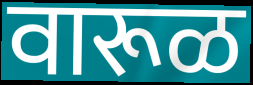
वारूळ